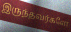
இருந்தவர்களே